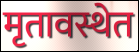
मृतावस्थेत